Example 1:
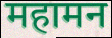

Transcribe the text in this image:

महामन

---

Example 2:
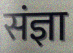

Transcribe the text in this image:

संज्ञा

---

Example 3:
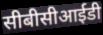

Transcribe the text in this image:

सीबीसीआईडी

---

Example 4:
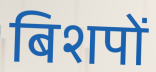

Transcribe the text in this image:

बिशपों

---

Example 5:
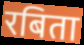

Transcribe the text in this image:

रबिता